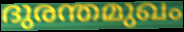
ദുരന്തമുഖം